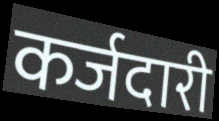
कर्जदारी